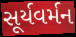
સૂર્યવર્મન